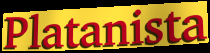
Platanista